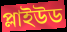
প্লাইউড